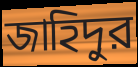
জাহিদুর